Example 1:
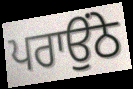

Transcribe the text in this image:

ਪਰਾਉਂਠੇ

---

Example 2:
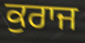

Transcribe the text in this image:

ਕੁਰਾਜ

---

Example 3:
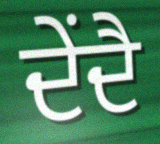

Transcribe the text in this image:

ਦੇਂਦੈ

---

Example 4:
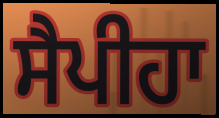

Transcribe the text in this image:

ਸੈਪੀਹਾ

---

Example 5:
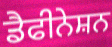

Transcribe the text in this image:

ਡੈਫੀਨੇਸ਼ਨ